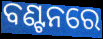
ବଣ୍ଟନରେ